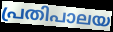
പ്രതിപാലയ